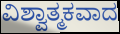
ವಿಶ್ವಾತ್ಮಕವಾದ